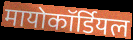
मायोकॉर्डियल